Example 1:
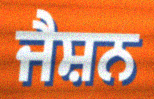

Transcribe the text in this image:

ਜੈਸ਼ਨ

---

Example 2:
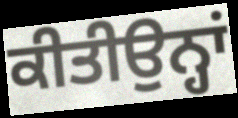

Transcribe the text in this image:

ਕੀਤੀਉਨ੍ਹਾਂ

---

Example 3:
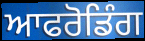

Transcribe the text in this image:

ਆਫਰੋਡਿੰਗ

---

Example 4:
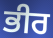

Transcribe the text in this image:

ਭੀਰ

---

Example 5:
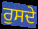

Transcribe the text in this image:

ਰੁਸਦੇ